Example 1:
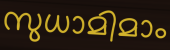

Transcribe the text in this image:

സുധാമിമാം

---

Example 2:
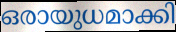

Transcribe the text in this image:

ഒരായുധമാക്കി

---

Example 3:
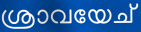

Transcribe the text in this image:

ശ്രാവയേച്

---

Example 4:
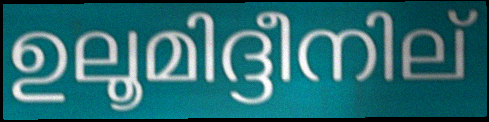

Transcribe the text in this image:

ഉലൂമിദ്ദീനില്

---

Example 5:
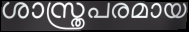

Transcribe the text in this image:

ശാസ്ത്രപരമായ